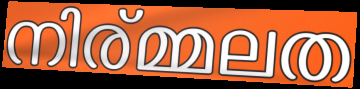
നിര്മ്മലത